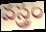
వస్త్రం